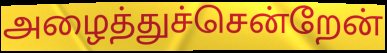
அழைத்துச்சென்றேன்